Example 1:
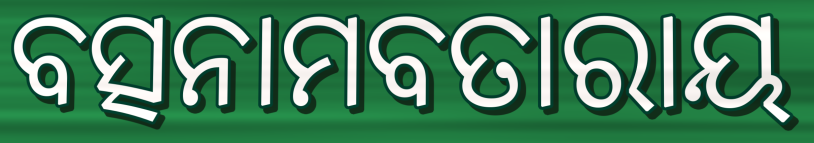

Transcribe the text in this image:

ବତ୍ସନାମବତାରାୟ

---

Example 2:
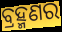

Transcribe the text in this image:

ବ୍ରହ୍ମଣର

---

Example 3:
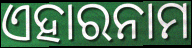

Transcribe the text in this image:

ଏହାରନାମ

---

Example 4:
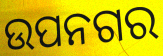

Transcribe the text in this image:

ଉପନଗର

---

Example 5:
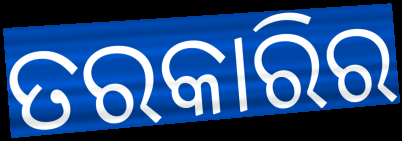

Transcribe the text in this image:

ତରକାରିର